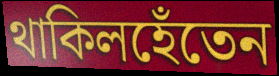
থাকিলহেঁতেন